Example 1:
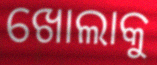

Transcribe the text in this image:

ଖୋଲାକୁ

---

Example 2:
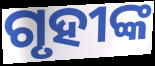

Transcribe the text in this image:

ଗୃହୀଙ୍କ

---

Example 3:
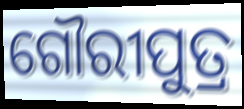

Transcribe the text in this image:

ଗୌରୀପୁତ୍ର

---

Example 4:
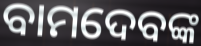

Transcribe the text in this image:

ବାମଦେବଙ୍କ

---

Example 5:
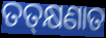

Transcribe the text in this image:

ତତ୍‌କ୍ଷଣାତ